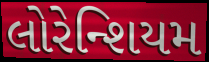
લોરેન્શિયમ